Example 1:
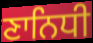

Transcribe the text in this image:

ਣਾਨਿਧੀ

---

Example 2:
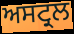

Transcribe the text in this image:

ਅਸਟ੍ਰਲ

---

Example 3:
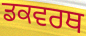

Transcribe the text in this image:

ਡਕਵਰਥ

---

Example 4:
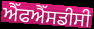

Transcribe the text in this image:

ਐੱਫਐੱਸਡੀਸੀ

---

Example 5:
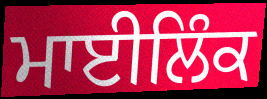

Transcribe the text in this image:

ਮਾਈਲਿੰਕ